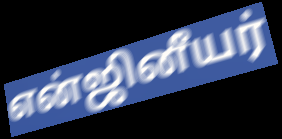
என்ஜினீயர்